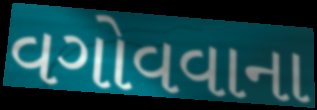
વગોવવાના